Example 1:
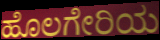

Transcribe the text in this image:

ಹೊಲಗೇರಿಯ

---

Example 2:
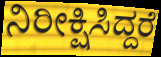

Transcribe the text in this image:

ನಿರೀಕ್ಷಿಸಿದ್ದರೆ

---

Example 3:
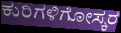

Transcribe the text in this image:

ಕುರಿಗಳಿಗೋಸ್ಕರ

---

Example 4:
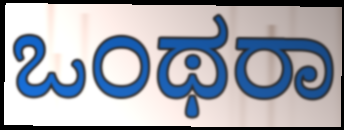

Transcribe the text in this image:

ಒಂಥರಾ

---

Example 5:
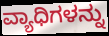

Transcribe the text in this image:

ವ್ಯಾಧಿಗಳನ್ನು